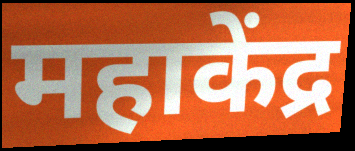
महाकेंद्र